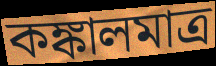
কঙ্কালমাত্র